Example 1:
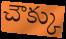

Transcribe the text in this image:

చౌక్కు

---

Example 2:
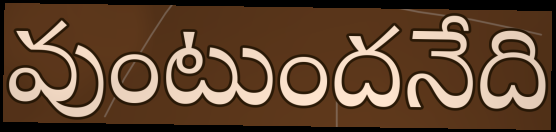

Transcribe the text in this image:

వుంటుందనేది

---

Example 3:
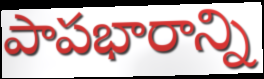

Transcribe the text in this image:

పాపభారాన్ని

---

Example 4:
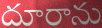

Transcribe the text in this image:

దూరాను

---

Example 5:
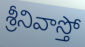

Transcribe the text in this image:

శ్రీనివాస్తో